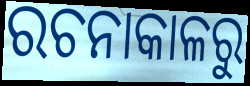
ରଚନାକାଳରୁ